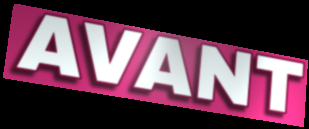
AVANT